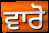
ਵਾਰੋ